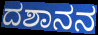
ದಶಾನನ